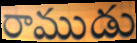
రాముడు